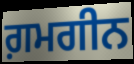
ਗ਼ਮਗੀਨ